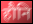
हौनि